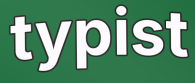
typist